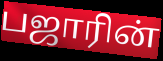
பஜாரின்